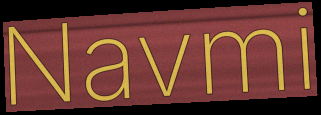
Navmi